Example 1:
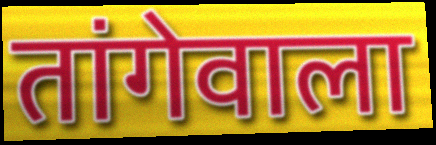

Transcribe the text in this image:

तांगेवाला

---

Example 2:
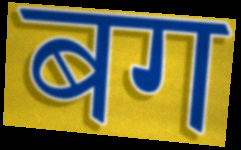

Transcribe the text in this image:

बग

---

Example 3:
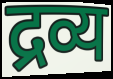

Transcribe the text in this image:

द्रव्य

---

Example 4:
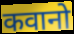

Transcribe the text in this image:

कवानो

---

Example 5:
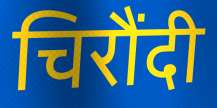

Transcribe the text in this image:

चिरौंदी